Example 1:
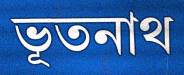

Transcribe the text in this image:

ভূতনাথ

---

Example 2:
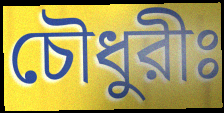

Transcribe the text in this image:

চৌধুরীঃ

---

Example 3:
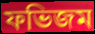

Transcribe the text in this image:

ফভিজম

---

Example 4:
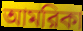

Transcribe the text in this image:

আমরিকা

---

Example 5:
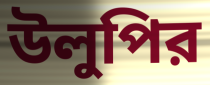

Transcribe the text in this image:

উলুপির